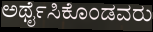
ಅರ್ಥೈಸಿಕೊಂಡವರು